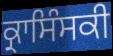
ਕ੍ਰਾਸਿੰਸਕੀ